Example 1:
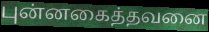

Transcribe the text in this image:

புன்னகைத்தவனை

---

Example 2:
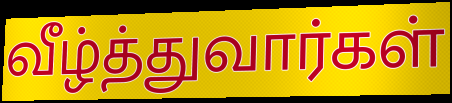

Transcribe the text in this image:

வீழ்த்துவார்கள்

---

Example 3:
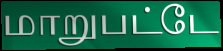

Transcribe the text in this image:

மாறுபட்டே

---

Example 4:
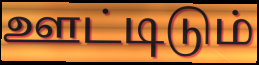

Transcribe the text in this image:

ஊட்டிடும்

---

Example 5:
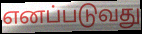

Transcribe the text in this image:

எனப்படுவது